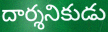
దార్శనికుడు